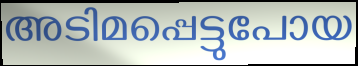
അടിമപ്പെട്ടുപോയ